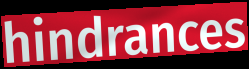
hindrances